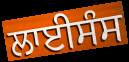
ਲਾਈਸੰਸ